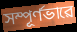
সম্পূৰ্ণভাৱে